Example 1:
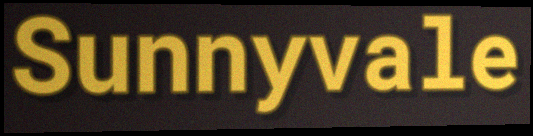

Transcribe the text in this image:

Sunnyvale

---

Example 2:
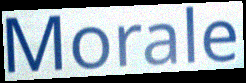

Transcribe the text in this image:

Morale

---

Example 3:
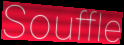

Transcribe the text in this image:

Souffle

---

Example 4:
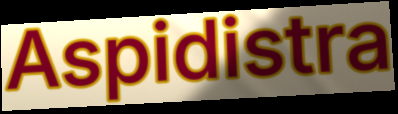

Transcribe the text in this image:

Aspidistra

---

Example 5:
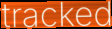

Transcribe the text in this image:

tracked